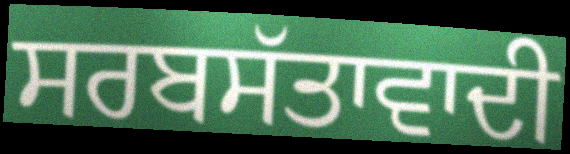
ਸਰਬਸੱਤਾਵਾਦੀ